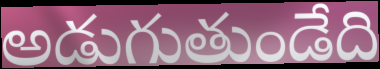
అడుగుతుండేది